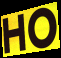
HO